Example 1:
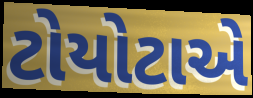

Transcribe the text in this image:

ટોયોટાએ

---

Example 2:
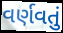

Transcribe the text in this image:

વર્ણવતું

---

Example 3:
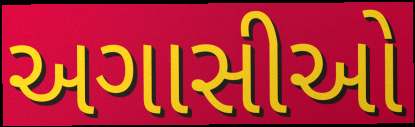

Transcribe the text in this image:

અગાસીઓ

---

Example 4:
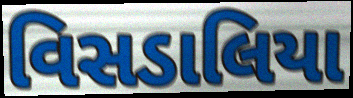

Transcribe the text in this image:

વિસડાલિયા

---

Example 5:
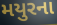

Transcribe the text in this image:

મયુરના